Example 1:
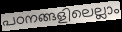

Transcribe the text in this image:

പഠനങ്ങളിലെല്ലാം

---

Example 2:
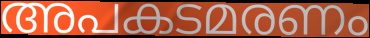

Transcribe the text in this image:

അപകടമരണം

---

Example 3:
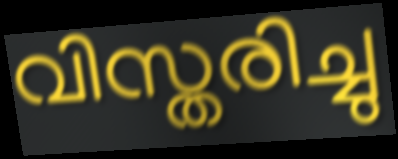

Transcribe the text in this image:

വിസ്തരിച്ചു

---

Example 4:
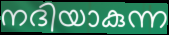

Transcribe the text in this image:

നദിയാകുന്ന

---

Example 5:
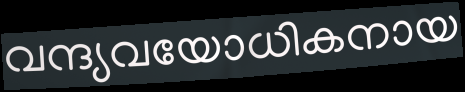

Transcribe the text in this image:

വന്ദ്യവയോധികനായ